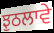
ਝੁਠਲਾਵੇ